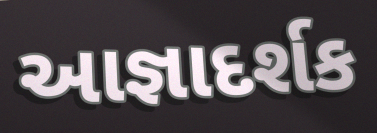
આજ્ઞાદર્શક